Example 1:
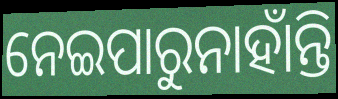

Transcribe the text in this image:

ନେଇପାରୁନାହାଁନ୍ତି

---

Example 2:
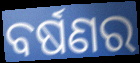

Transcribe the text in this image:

ବର୍ଷଣର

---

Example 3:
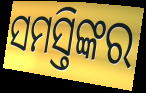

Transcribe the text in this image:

ସମସ୍ତିଙ୍କର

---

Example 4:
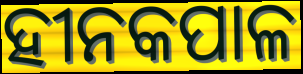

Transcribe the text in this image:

ହୀନକପାଳ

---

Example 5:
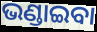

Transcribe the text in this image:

ଭଣ୍ଡାଇବା